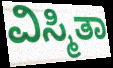
ವಿಸ್ಮಿತಾ